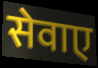
सेवाए